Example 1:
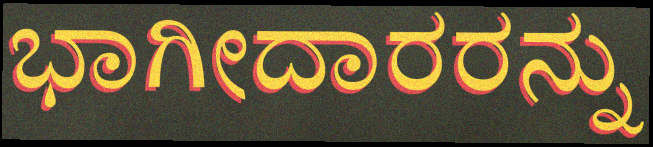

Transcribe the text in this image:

ಭಾಗೀದಾರರನ್ನು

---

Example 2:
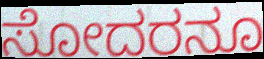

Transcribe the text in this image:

ಸೋದರನೂ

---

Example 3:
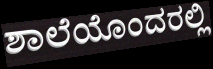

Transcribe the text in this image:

ಶಾಲೆಯೊಂದರಲ್ಲಿ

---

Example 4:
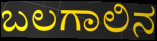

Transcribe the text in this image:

ಬಲಗಾಲಿನ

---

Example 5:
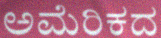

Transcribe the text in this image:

ಅಮೆರಿಕದ